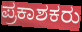
ಪ್ರಕಾಶಕರು